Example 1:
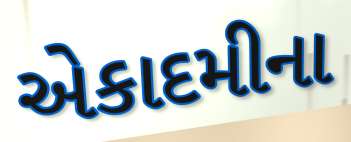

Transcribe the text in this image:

એકાદમીના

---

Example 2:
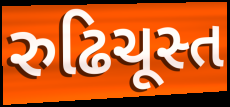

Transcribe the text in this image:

રુઢિચૂસ્ત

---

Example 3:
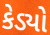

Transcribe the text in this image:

કેડ્યો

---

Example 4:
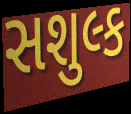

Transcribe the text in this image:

સશુલ્ક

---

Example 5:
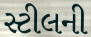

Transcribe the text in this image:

સ્ટીલની